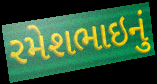
રમેશભાઇનું